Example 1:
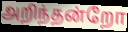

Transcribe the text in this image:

அறிந்தன்றோ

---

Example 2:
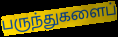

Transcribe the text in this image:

பருந்துகளைப்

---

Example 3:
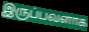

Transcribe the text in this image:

இருப்பவளாக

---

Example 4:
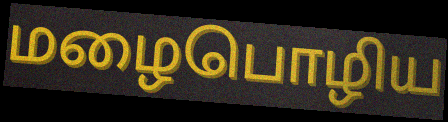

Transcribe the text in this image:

மழைபொழிய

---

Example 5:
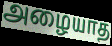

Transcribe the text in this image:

அழையாத